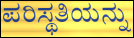
ಪರಿಸ್ಥತಿಯನ್ನು